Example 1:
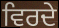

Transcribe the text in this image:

ਵਿਰਦੇ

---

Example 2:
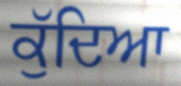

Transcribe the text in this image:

ਕੁੱਦਿਆ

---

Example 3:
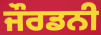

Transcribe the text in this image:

ਜੌਰਡਨੀ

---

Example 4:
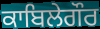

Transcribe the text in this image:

ਕਾਬਿਲੇਗੌਰ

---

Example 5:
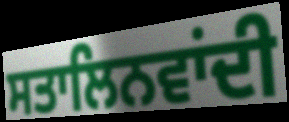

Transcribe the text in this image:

ਸਤਾਲਿਨਵਾਂਦੀ